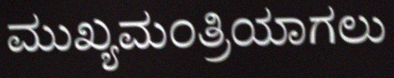
ಮುಖ್ಯಮಂತ್ರಿಯಾಗಲು